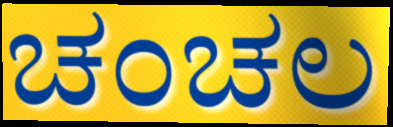
ಚಂಚಲ